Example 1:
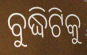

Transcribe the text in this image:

ବୁଦ୍ଧିଟିକୁ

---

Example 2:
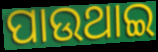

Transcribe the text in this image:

ପାଉଥାଇ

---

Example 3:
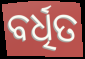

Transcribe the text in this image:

ବର୍ଧିତ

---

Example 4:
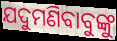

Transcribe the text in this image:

ଯଦୁମଣିବାବୁଙ୍କୁ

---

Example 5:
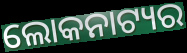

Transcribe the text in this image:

ଲୋକନାଟ୍ୟର